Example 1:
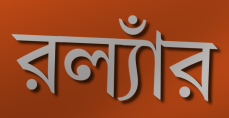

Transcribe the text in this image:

রল্যাঁর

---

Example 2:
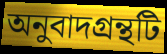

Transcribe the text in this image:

অনুবাদগ্রন্থটি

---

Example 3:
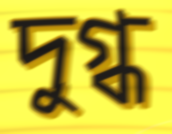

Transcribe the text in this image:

দুগ্ধ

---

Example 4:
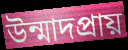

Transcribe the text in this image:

উন্মাদপ্রায়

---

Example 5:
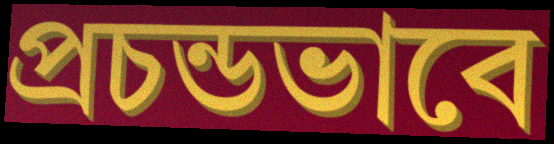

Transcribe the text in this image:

প্রচন্ডভাবে